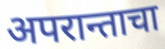
अपरान्ताचा